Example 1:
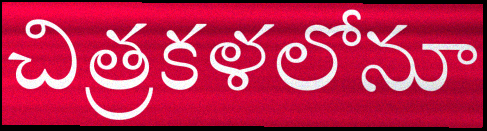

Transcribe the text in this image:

చిత్రకళలోనూ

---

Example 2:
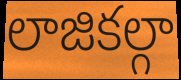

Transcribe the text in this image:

లాజికల్గా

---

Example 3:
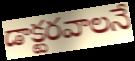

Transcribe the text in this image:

డాక్టరవాలనే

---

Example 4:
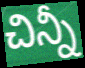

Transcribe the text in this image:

చిన్నీ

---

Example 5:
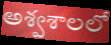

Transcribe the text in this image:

అశ్వశాలలో